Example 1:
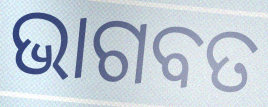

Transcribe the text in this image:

ଭାଗବତ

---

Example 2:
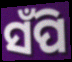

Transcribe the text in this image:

ସଁପି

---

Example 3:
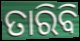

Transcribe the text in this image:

ତାରିବି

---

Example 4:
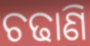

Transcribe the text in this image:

ଚଢାଣି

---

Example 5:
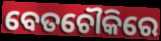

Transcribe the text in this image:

ବେତଚୌକିରେ